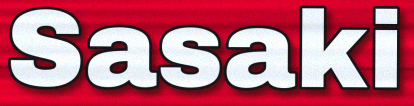
Sasaki